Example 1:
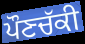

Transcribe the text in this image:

ਪੌਣਚੱਕੀ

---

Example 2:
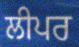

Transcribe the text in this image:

ਲੀਪਰ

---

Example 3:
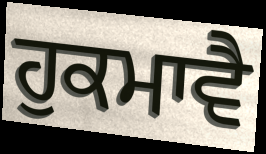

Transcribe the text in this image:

ਹੁਕਮਾਵੈ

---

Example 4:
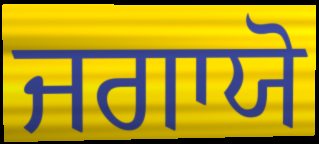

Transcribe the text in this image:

ਜਗਾਯੋ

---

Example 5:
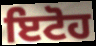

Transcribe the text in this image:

ਇਟੋਹ